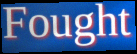
Fought